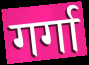
गर्गा